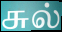
சுல்